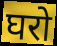
घरो